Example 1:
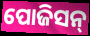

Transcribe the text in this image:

ପୋଜିସନ୍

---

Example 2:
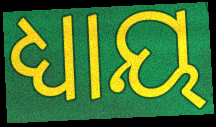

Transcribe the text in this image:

ଧ୍ୟାୟ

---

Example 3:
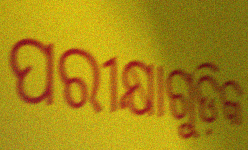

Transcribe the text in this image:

ପରୀକ୍ଷାଗୁଡ଼ିକ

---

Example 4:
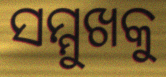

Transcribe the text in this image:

ସମ୍ମୁଖକୁ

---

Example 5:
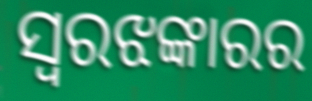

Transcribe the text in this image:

ସ୍ୱରଝଙ୍କାରର